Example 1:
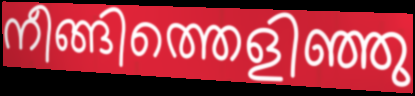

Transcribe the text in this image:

നീങ്ങിത്തെളിഞ്ഞു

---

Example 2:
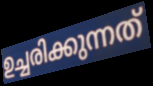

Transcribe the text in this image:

ഉച്ചരിക്കുന്നത്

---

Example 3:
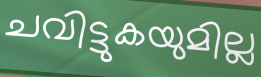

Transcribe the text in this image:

ചവിട്ടുകയുമില്ല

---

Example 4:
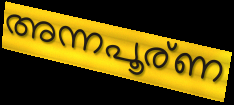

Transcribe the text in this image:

അന്നപൂര്ണ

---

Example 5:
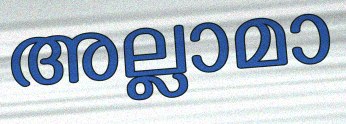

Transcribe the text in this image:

അല്ലാമാ